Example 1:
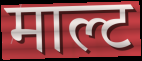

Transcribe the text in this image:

माल्ट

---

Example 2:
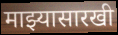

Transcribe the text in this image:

माझ्यासारखी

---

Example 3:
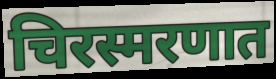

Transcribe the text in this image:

चिरस्मरणात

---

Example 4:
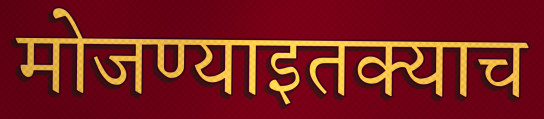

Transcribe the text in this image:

मोजण्याइतक्याच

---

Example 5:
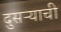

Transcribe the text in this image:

दुसऱ्याची